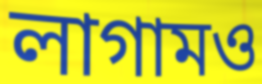
লাগামও